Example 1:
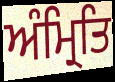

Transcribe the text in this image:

ਅੰਮ੍ਰਿਤਿ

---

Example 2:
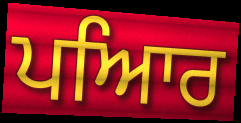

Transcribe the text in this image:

ਪਆਿਰ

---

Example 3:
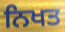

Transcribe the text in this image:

ਨਿਖਤ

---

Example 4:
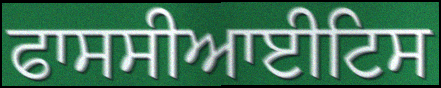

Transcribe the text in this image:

ਫਾਸਸੀਆਈਟਿਸ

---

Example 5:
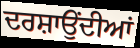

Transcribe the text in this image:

ਦਰਸ਼ਾਉਂਦੀਆਂ